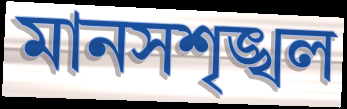
মানসশৃঙ্খল